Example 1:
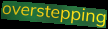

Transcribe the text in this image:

overstepping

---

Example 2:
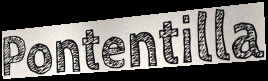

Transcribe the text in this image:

Pontentilla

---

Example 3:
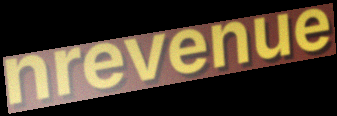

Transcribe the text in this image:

nrevenue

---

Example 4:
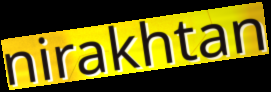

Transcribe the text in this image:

nirakhtan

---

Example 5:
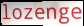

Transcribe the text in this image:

lozenge